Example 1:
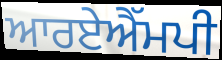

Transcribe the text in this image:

ਆਰਏਐੱਮਪੀ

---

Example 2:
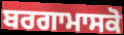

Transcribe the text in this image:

ਬਰਗਾਮਾਸਕੋ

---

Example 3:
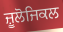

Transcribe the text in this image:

ਜ਼ੂਲੋਜਿਕਲ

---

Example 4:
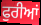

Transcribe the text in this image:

ਫੁਰੀਆਂ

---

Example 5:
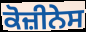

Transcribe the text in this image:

ਕੋਜ਼ੀਨੇਸ